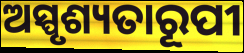
ଅସ୍ପୃଶ୍ୟତାରୂପୀ